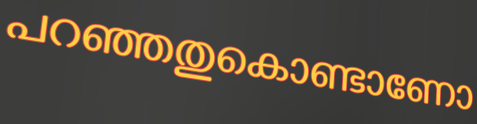
പറഞ്ഞതുകൊണ്ടാണോ